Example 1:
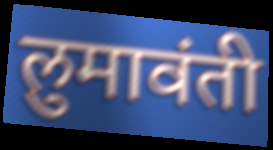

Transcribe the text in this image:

लुमावंती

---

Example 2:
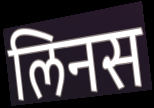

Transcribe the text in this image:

लिनस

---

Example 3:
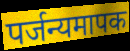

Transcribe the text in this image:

पर्जन्यमापक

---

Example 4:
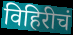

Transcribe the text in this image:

विहिरीचं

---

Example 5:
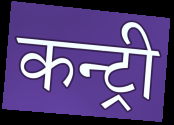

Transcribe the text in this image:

कन्ट्री